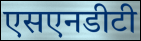
एसएनडीटी